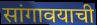
सांगावयाची